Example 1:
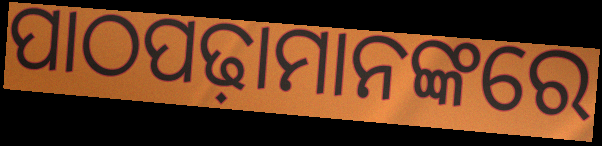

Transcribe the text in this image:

ପାଠପଢ଼ାମାନଙ୍କରେ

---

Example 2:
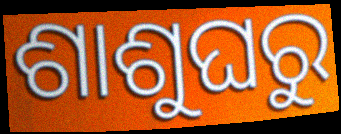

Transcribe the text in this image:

ଶାଶୁଘରୁ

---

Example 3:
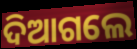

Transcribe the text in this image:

ଦିଆଗଲେ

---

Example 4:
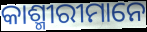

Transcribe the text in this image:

କାଶ୍ମୀରୀମାନେ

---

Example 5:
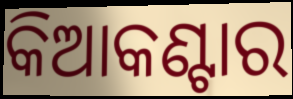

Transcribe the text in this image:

କିଆକଣ୍ଟାର